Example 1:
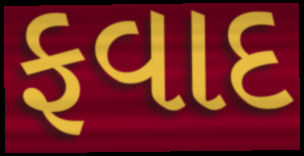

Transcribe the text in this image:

ફવાદ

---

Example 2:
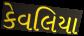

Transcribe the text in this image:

કેવલિયા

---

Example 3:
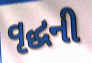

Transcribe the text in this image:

વૃદ્ધની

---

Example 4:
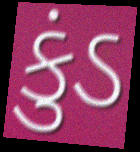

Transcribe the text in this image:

કુંડ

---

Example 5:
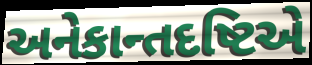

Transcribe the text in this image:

અનેકાન્તદષ્ટિએ